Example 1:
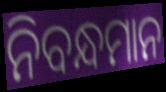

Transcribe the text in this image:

ନିବନ୍ଧମାନ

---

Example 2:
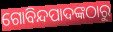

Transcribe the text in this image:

ଗୋବିନ୍ଦପାଦଙ୍କଠାରୁ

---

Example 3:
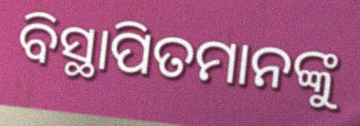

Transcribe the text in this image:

ବିସ୍ଥାପିତମାନଙ୍କୁ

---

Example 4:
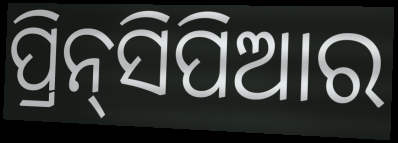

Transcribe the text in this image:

ପ୍ରିନ୍‌ସିପିଆର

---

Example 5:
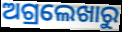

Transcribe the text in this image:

ଅଗ୍ରଲେଖାରୁ